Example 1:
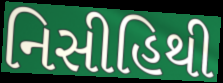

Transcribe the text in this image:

નિસીહિથી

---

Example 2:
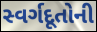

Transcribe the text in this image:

સ્વર્ગદૂતોની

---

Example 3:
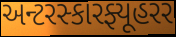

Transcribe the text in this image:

અન્ટરસ્કારફ્યૂહરર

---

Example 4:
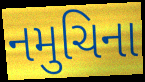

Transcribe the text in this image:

નમુચિના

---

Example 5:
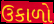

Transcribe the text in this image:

ઉકાળો